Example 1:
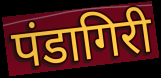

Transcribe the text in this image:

पंडागिरी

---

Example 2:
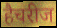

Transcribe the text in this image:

हैचरीज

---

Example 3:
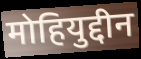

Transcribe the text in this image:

मोहियुद्दीन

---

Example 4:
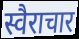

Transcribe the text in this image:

स्वैराचार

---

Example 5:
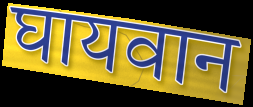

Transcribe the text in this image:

घायवान